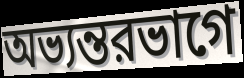
অভ্যন্তরভাগে